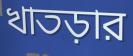
খাতড়ার